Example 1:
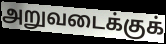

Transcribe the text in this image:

அறுவடைக்குக்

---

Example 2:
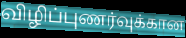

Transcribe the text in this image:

விழிப்புணர்வுக்கான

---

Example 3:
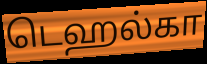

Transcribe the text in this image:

டெஹல்கா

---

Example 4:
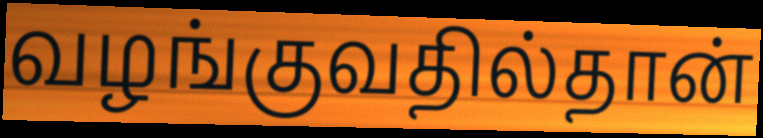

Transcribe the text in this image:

வழங்குவதில்தான்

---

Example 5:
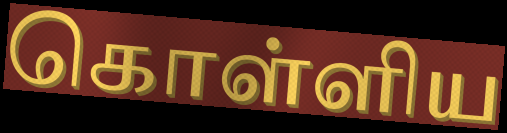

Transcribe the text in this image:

கொள்ளிய